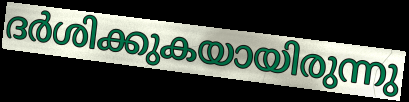
ദർശിക്കുകയായിരുന്നു